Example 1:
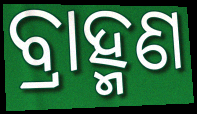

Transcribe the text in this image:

ବ୍ରାହ୍ମଣ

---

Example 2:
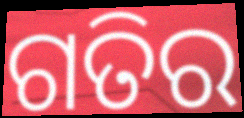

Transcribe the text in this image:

ଗତିର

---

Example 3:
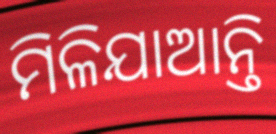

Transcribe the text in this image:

ମିଳିଯାଆନ୍ତି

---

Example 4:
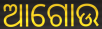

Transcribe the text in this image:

ଆଗୋଉ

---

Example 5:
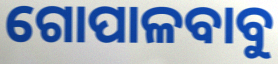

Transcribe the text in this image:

ଗୋପାଳବାବୁ